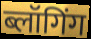
ब्‍लॉगिंग